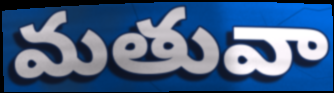
మతువా